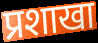
प्रशाखा